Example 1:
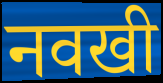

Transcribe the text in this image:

नवखी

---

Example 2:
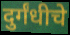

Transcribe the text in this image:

दुर्गंधीचे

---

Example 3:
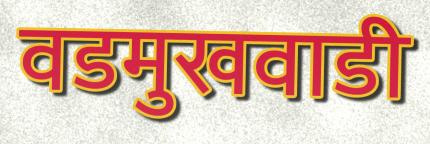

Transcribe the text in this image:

वडमुखवाडी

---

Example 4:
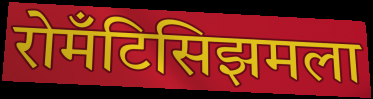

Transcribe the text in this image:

रोमँटिसिझमला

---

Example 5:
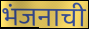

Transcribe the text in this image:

भंजनाची